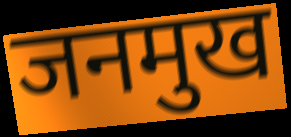
जनमुख